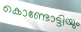
കൊണ്ടോട്ടിയും